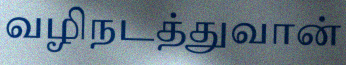
வழிநடத்துவான்